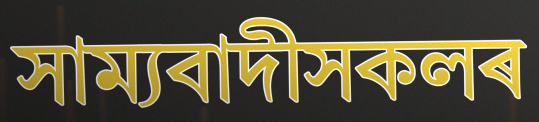
সাম্যবাদীসকলৰ